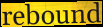
rebound